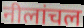
नीलांचल